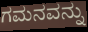
ಗಮನವನ್ನು